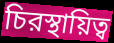
চিরস্থায়িত্ব